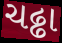
ચઢ્ઢા